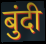
बुंदी